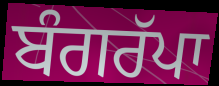
ਬੰਗਰੱਪਾ